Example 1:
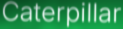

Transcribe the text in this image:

Caterpillar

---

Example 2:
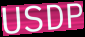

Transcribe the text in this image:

USDP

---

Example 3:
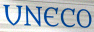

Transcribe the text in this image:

UNECO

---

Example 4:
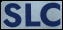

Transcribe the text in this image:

SLC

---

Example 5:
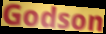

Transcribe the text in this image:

Godson